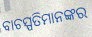
ବାଚସ୍ପତିମାନଙ୍କର